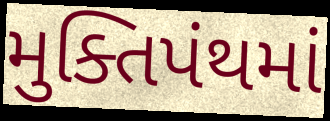
મુક્તિપંથમાં